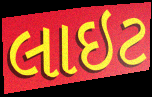
લાઇટ